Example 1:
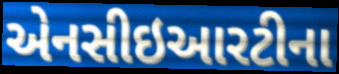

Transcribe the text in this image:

એનસીઇઆરટીના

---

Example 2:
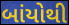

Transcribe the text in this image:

બાંયોથી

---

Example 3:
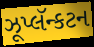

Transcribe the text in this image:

ઝૂપ્લૅન્કટન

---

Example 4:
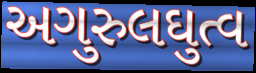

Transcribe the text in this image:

અગુરુલઘુત્વ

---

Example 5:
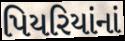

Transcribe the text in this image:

પિયરિયાંનાં